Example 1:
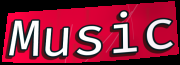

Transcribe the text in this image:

Music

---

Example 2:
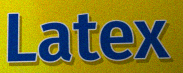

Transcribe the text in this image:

Latex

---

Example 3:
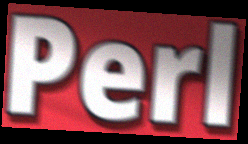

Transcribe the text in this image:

Perl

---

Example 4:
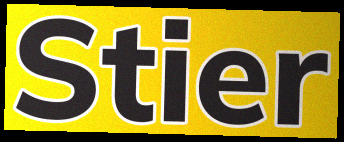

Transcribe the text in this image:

Stier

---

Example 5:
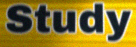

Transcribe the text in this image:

Study